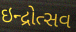
ઇન્દ્રોત્સવ